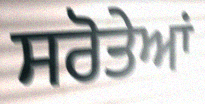
ਸਰੋਤੇਆਂ